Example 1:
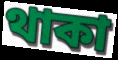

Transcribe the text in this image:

থাকা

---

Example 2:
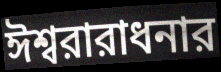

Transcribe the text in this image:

ঈশ্বরারাধনার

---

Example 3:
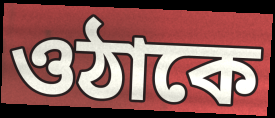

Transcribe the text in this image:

ওঠাকে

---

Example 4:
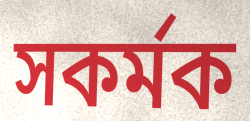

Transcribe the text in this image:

সকর্মক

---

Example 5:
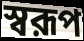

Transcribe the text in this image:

স্বরূপ